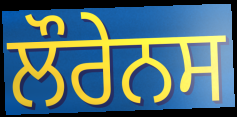
ਲੌਰੇਨਸ